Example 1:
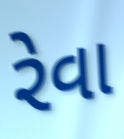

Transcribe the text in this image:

રેવા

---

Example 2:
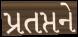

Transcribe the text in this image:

પ્રતપ્તને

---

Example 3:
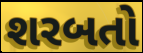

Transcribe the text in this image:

શરબતો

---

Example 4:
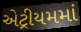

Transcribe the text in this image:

એટ્રીયમમાં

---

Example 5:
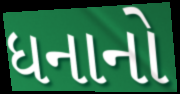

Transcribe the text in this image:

ધનાનો